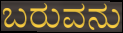
ಬರುವನು